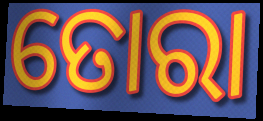
ତୋରା